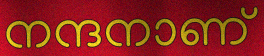
നന്ദനാണ്